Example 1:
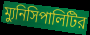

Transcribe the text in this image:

ম্যুনিসিপালিটির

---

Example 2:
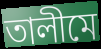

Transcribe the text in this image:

তালীমে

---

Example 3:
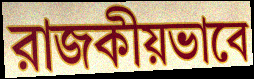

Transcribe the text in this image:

রাজকীয়ভাবে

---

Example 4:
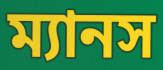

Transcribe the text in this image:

ম্যানস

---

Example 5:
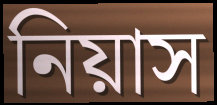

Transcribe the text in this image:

নিয়াস